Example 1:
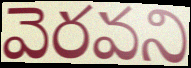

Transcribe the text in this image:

వెరవని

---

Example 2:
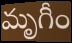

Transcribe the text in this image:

మృగీం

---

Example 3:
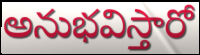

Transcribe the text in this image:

అనుభవిస్తారో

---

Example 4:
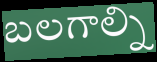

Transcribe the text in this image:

బలగాల్ని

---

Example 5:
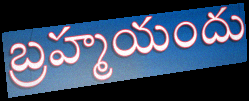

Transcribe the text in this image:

బ్రహ్మయందు